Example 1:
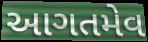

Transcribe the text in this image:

આગતમેવ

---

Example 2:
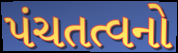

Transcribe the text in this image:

પંચતત્વનો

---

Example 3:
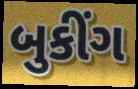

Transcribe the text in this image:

બુકીંગ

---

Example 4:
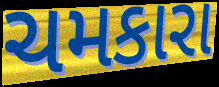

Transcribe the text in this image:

ચમકારા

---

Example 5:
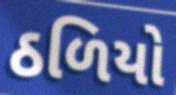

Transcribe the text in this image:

ઠળિયો